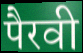
पैरवी